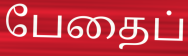
பேதைப்